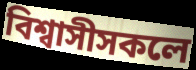
বিশ্বাসীসকলে